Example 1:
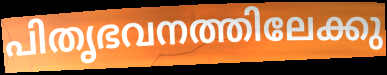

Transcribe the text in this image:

പിതൃഭവനത്തിലേക്കു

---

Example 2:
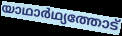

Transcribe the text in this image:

യാഥാർഥ്യത്തോട്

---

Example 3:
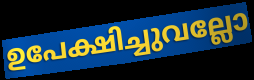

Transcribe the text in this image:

ഉപേക്ഷിച്ചുവല്ലോ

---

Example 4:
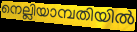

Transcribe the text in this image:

നെല്ലിയാമ്പതിയിൽ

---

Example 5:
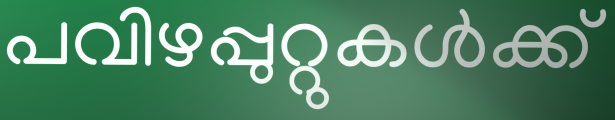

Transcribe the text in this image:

പവിഴപ്പുറ്റുകൾക്ക്